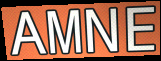
AMNE